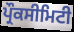
ਪ੍ਰੌਕਸੀਮਿਟੀ